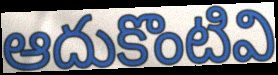
ఆదుకొంటివి